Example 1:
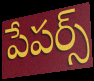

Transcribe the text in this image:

పేపర్స్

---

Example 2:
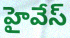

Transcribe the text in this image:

హైవేస్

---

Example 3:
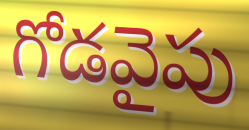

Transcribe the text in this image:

గోడవైపు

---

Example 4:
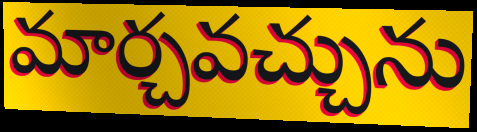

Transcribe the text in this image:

మార్చవచ్చును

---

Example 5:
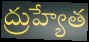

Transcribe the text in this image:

ద్రుహ్యేత